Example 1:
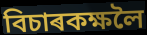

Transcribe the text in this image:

বিচাৰকক্ষলৈ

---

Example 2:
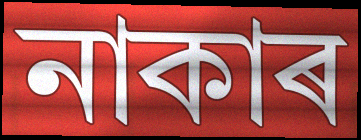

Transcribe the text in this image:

নাকাৰ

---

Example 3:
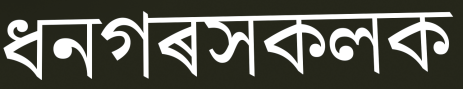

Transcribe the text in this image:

ধনগৰসকলক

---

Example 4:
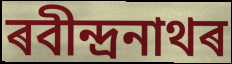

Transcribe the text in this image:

ৰবীন্দ্ৰনাথৰ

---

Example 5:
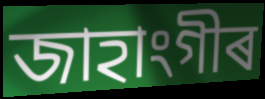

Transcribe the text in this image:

জাহাংগীৰ